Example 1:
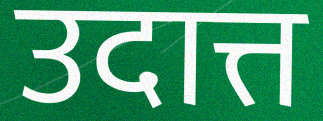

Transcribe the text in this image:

उदात्त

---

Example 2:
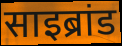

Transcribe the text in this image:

साइब्रांड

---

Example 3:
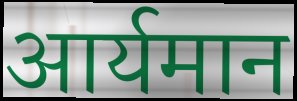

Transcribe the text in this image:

आर्यमान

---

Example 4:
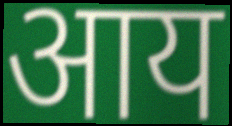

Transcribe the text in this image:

आय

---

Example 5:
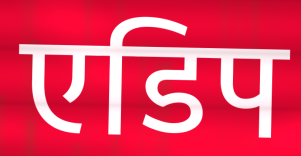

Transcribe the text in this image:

एडिप